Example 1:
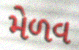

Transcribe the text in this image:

મેળવ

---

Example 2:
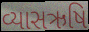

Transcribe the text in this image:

વ્યાસઋષિ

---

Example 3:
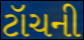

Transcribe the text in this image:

ટૉચની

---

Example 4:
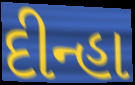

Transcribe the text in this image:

દીન્હા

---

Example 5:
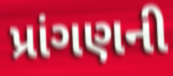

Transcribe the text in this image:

પ્રાંગણની